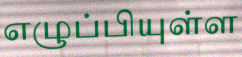
எழுப்பியுள்ள